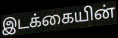
இடக்கையின்